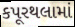
કપૂરથલામાં